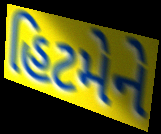
હિટમેને